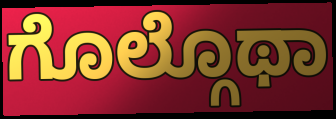
ಗೊಲ್ಗೊಥಾ